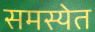
समस्येत